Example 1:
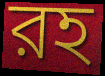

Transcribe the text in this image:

রহ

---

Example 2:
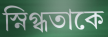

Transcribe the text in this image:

স্নিগ্ধতাকে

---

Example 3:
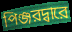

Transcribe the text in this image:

পিঞ্জরদ্বারে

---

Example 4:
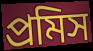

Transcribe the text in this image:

প্রমিস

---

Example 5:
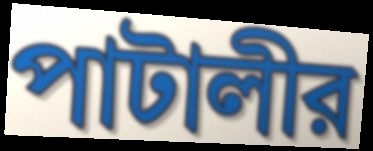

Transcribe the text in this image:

পাটালীর